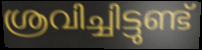
ശ്രവിച്ചിട്ടുണ്ട്